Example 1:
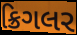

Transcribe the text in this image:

ક્રિગલર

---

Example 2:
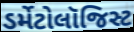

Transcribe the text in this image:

ડર્મેટોલૉજિસ્ટ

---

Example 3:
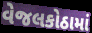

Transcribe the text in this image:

વેજલકોઠામાં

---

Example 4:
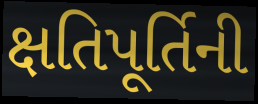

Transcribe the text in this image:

ક્ષતિપૂર્તિની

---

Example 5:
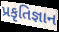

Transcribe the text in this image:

પ્રકૃતિજ્ઞાન